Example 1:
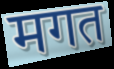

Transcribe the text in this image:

मगत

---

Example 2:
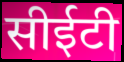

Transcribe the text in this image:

सीईटी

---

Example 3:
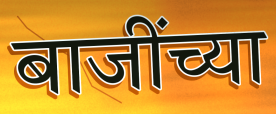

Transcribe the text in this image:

बाजींच्या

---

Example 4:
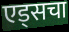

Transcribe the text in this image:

एड्सचा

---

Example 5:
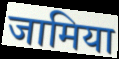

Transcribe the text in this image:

जामिया